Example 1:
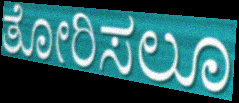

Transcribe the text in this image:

ತೋರಿಸಲೂ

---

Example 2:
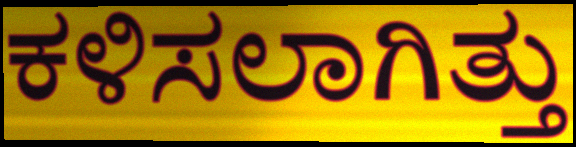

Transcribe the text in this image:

ಕಳಿಸಲಾಗಿತ್ತು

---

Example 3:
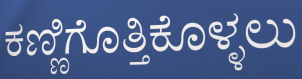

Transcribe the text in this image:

ಕಣ್ಣಿಗೊತ್ತಿಕೊಳ್ಳಲು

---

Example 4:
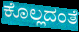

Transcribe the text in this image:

ಕೊಲ್ಲದಂತೆ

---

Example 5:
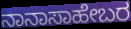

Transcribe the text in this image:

ನಾನಾಸಾಹೇಬರ